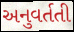
અનુવર્તતી